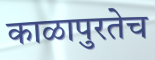
काळापुरतेच